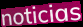
noticias